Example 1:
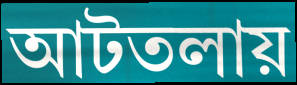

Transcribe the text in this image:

আটতলায়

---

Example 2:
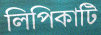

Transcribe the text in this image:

লিপিকাটি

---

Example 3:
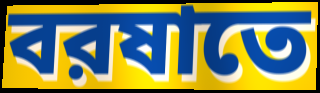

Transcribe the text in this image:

বরষাতে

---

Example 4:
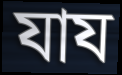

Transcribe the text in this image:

যায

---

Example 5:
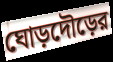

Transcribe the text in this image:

ঘোড়দৌড়ের